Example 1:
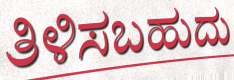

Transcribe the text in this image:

ತಿಳಿಸಬಹುದು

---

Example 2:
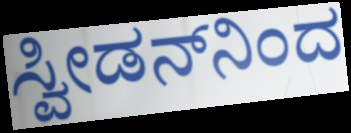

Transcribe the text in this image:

ಸ್ವೀಡನ್‌ನಿಂದ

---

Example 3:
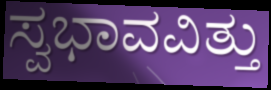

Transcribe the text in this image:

ಸ್ವಭಾವವಿತ್ತು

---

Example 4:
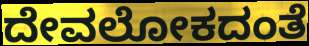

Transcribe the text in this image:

ದೇವಲೋಕದಂತೆ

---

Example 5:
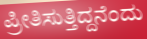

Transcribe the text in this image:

ಪ್ರೀತಿಸುತ್ತಿದ್ದನೆಂದು